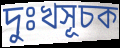
দুঃখসূচক